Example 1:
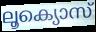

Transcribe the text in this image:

ലൂക്യൊസ്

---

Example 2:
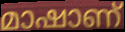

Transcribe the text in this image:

മാഷാണ്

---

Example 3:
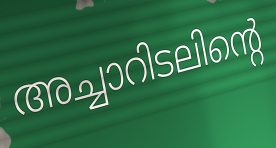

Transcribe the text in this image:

അച്ചാറിടലിന്റെ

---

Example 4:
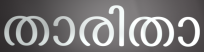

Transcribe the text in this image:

താരിതാ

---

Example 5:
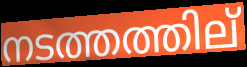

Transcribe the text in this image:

നടത്തത്തില്